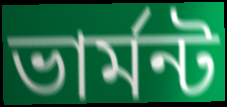
ভার্মন্ট